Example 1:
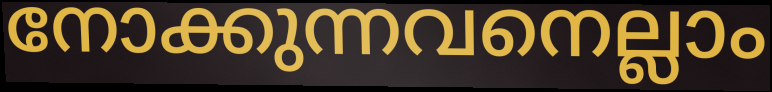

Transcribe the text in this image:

നോക്കുന്നവനെല്ലാം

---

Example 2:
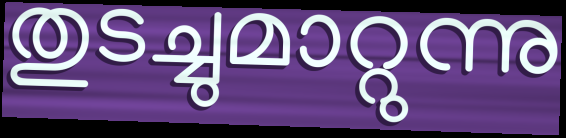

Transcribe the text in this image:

തുടച്ചുമാറ്റുന്നു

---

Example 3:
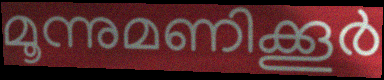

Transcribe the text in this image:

മൂന്നുമണിക്കൂർ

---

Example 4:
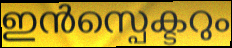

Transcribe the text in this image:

ഇൻസ്പെക്ടറും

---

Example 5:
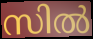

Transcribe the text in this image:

സിൽ